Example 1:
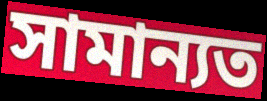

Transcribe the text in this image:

সামান্যত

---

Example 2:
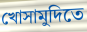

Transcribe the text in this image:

খোসামুদিতে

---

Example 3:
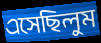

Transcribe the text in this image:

এসেছিলুম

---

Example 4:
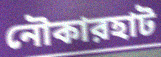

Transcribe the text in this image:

নৌকারহাট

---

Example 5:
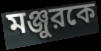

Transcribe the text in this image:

মঞ্জুরকে